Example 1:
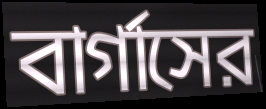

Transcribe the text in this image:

বার্গাসের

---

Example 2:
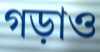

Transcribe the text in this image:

গড়াও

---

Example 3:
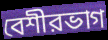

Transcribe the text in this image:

বেশীরভাগ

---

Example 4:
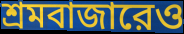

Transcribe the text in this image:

শ্রমবাজারেও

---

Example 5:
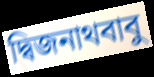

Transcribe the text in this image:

দ্বিজনাথবাবু